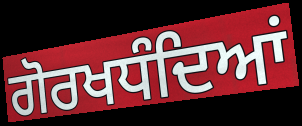
ਗੋਰਖਧੰਦਿਆਂ